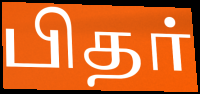
பிதர்